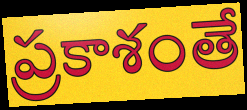
ప్రకాశంతే